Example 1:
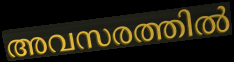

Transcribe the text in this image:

അവസരത്തിൽ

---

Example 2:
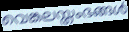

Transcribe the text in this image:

വെങ്കലസ്തംഭങ്ങൾ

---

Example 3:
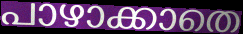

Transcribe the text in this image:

പാഴാക്കാതെ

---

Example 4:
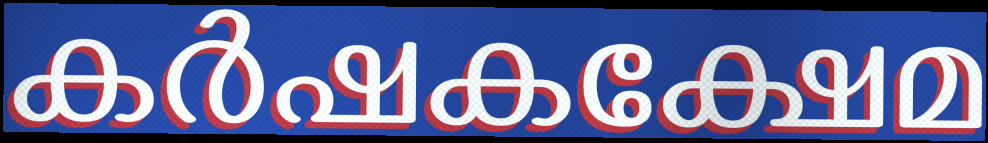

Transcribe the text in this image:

കർഷകക്ഷേമ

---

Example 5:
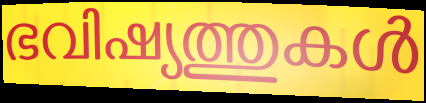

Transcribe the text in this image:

ഭവിഷ്യത്തുകൾ